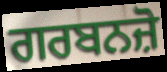
ਗਰਬਨਜ਼ੋ